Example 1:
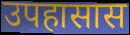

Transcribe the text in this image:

उपहासास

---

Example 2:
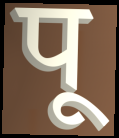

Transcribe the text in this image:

पू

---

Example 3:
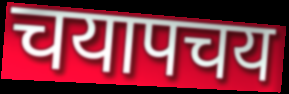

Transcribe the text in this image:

चयापचय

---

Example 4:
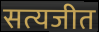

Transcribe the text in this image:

सत्यजीत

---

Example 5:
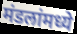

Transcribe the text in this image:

मंडलांमध्ये